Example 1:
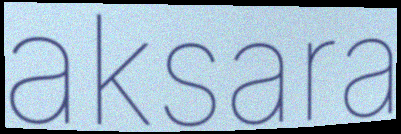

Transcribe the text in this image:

aksara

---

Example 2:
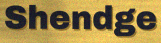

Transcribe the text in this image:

Shendge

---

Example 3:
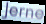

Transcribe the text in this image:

Jerne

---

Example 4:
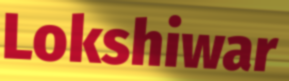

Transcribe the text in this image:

Lokshiwar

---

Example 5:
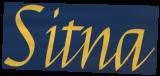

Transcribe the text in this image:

Sitna